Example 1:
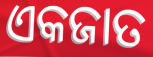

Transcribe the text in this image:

ଏକଜାତ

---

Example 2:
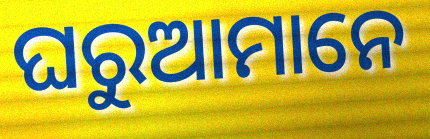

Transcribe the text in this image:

ଘରୁଆମାନେ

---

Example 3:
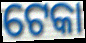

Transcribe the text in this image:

ଟେକା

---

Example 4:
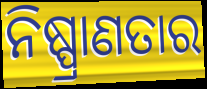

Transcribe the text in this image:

ନିଷ୍ପ୍ରାଣତାର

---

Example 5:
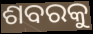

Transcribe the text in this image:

ଶବରକୁ